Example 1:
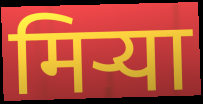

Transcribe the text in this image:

मिऱ्या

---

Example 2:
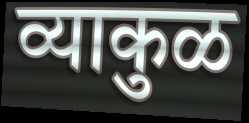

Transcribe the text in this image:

व्याकुळ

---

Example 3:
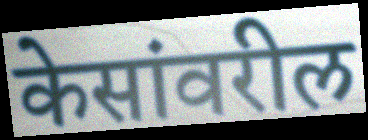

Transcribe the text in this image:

केसांवरील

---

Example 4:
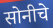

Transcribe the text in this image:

सोनीचे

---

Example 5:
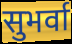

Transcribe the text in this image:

सुभर्वा